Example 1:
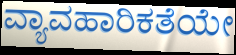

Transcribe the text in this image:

ವ್ಯಾವಹಾರಿಕತೆಯೇ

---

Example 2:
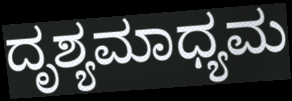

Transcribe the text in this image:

ದೃಶ್ಯಮಾಧ್ಯಮ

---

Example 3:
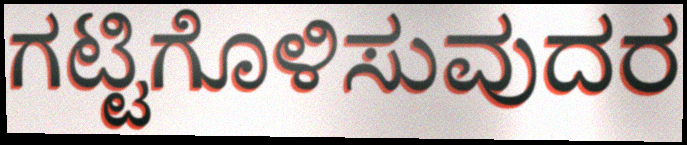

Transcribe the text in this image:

ಗಟ್ಟಿಗೊಳಿಸುವುದರ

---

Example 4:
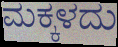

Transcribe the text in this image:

ಮಕ್ಕಳದು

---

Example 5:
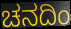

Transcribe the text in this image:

ಚನದಿಂ